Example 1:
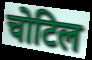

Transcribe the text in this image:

चोटिल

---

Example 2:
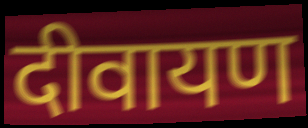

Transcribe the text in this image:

दीवायण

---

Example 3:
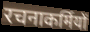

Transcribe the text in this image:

रचनाकर्मियों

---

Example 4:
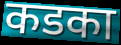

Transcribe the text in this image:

कडका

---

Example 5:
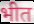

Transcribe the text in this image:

भीत